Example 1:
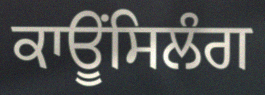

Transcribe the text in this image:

ਕਾਊਂਸਿਲੰਗ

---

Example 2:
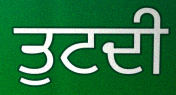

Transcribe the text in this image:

ਤੁਟਦੀ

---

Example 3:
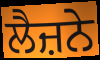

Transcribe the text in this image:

ਲੈਜ਼ਨੇ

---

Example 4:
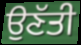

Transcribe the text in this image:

ਉਣੱਤੀ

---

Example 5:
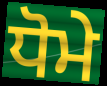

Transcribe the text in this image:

ਧੋਮੇ